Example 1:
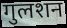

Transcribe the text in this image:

गुलशन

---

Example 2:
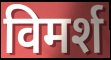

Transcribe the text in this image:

विमर्श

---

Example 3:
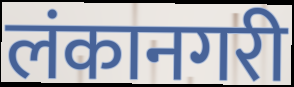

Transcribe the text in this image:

लंकानगरी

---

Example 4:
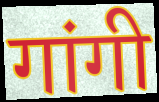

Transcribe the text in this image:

गांगी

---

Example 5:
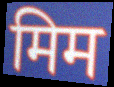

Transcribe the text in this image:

मिम